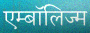
एम्बॉलिज्म